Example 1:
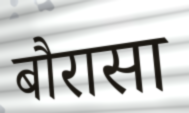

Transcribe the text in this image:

बौरासा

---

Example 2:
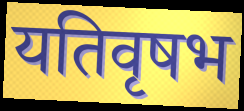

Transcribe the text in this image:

यतिवृषभ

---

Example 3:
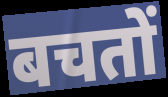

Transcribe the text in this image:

बचतों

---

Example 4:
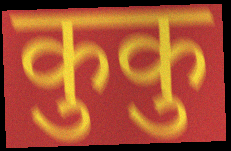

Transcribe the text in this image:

कुकु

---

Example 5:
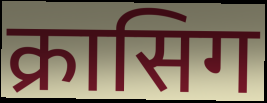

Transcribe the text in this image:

क्रासिग